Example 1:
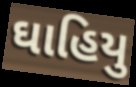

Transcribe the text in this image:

ઘાહિયુ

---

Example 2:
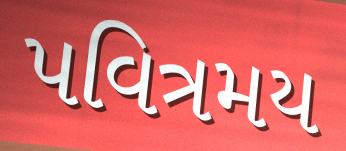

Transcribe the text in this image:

પવિત્રમય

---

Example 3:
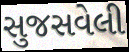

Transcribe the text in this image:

સુજસવેલી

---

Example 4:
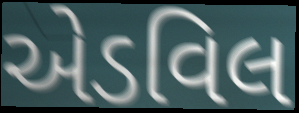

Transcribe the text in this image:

એડવિલ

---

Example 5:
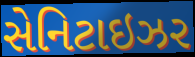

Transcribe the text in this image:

સેનિટાઇઝર